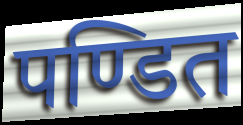
पण्डित